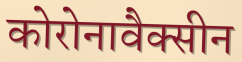
कोरोनावैक्सीन